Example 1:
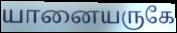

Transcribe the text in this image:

யானையருகே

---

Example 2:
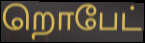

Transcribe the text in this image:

றொபேட்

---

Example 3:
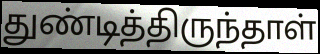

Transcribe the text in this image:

துண்டித்திருந்தாள்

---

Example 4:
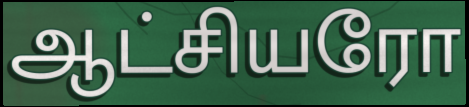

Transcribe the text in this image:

ஆட்சியரோ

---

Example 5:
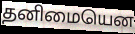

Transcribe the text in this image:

தனிமையென